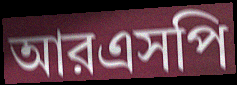
আরএসপি